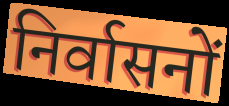
निर्वासनों